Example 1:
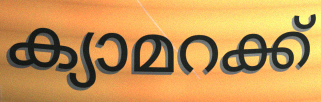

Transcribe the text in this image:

ക്യാമറക്ക്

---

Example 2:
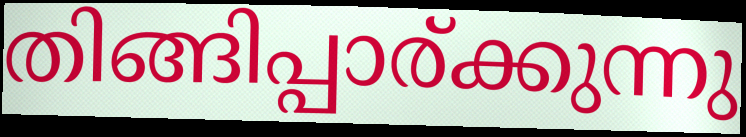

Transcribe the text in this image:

തിങ്ങിപ്പാര്ക്കുന്നു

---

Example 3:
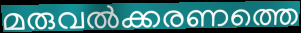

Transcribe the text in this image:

മരുവൽക്കരണത്തെ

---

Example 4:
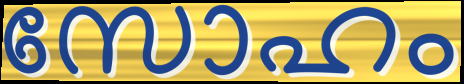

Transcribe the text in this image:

സോഹം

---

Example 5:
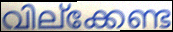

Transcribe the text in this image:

വില്ക്കേണ്ട